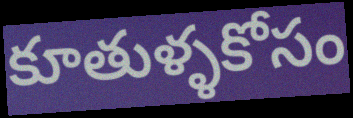
కూతుళ్ళకోసం